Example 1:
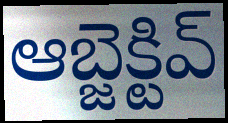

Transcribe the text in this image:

ఆబ్జెక్టివ్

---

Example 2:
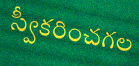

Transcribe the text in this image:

స్వీకరించగల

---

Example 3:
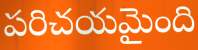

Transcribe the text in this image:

పరిచయమైంది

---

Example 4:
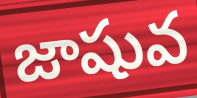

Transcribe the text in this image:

జాషువ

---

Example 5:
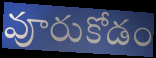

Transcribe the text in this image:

వూరుకోడం